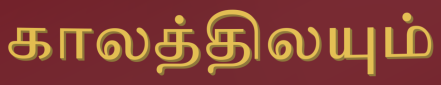
காலத்திலயும்